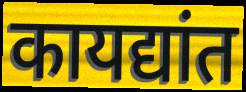
कायद्यांत